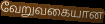
வேறுவகையான